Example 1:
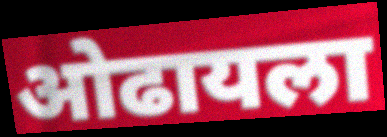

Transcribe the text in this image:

ओढायला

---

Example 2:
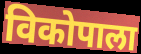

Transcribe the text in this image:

विकोपाला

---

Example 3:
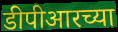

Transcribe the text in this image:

डीपीआरच्या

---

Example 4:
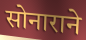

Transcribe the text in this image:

सोनाराने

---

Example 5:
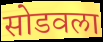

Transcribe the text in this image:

सोडवला